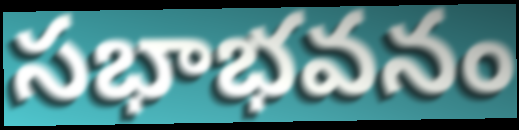
సభాభవనం